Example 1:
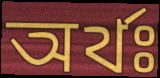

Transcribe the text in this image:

অর্থঃ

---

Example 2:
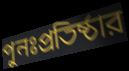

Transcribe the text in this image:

পুনঃপ্রতিষ্ঠার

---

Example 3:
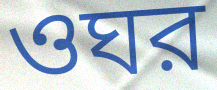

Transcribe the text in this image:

ওঘর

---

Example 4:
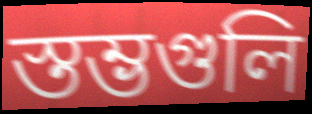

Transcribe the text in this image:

স্তম্ভগুলি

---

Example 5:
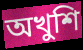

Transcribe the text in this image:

অখুশি